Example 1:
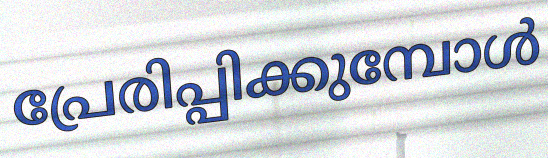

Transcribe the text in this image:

പ്രേരിപ്പിക്കുമ്പോൾ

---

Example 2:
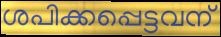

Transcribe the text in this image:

ശപിക്കപ്പെട്ടവന്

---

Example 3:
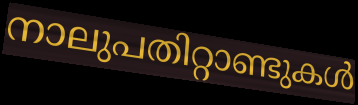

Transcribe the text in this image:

നാലുപതിറ്റാണ്ടുകൾ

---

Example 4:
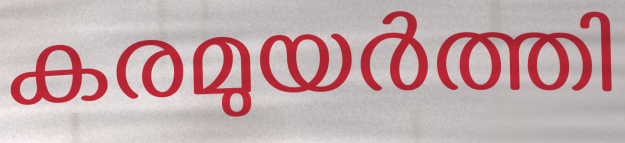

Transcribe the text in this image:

കരമുയർത്തി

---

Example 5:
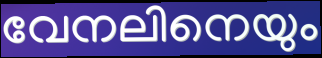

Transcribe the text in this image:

വേനലിനെയും